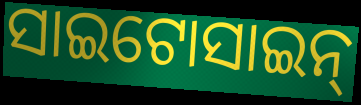
ସାଇଟୋସାଇନ୍